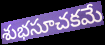
శుభసూచకమే